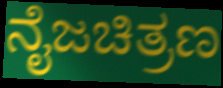
ನೈಜಚಿತ್ರಣ